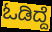
ಓಡಿದ್ದೆ